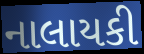
નાલાયકી